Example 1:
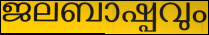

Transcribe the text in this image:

ജലബാഷ്പവും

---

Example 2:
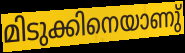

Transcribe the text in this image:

മിടുക്കിനെയാണു്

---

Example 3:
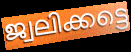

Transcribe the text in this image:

ജ്വലിക്കട്ടെ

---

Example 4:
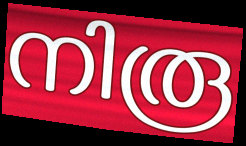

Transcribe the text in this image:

നിരൂ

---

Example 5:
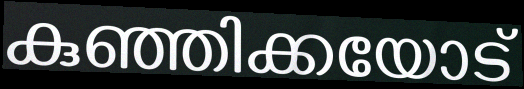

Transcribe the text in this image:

കുഞ്ഞിക്കയോട്